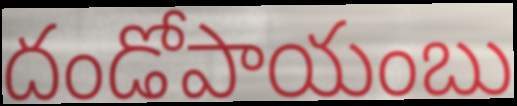
దండోపాయంబు